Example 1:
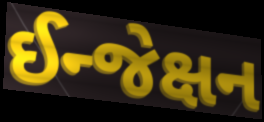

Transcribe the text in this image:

ઈન્જેક્ષન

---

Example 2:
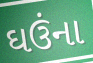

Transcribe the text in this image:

ઘઉંના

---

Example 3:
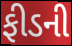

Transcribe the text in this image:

ફીડની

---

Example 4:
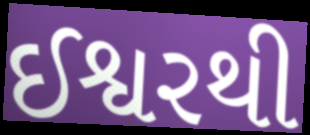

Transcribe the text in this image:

ઈશ્વરથી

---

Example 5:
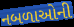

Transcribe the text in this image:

નબળાઓની